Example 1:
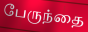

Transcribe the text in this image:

பேருந்தை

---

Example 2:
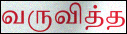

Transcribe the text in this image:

வருவித்த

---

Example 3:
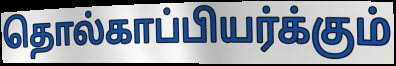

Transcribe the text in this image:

தொல்காப்பியர்க்கும்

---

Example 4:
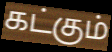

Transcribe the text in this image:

கட்கும்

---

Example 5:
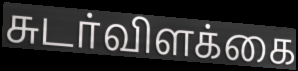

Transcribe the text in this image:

சுடர்விளக்கை